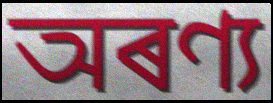
অৰণ্য